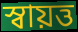
স্বায়ত্ত